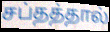
சப்தத்தால்